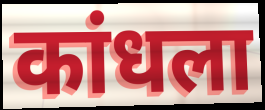
कांधला